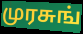
முரசுங்